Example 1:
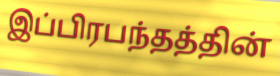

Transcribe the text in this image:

இப்பிரபந்தத்தின்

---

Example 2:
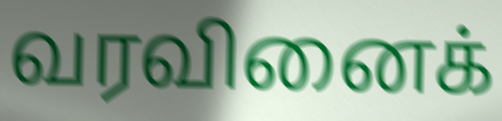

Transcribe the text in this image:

வரவினைக்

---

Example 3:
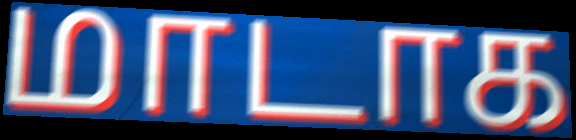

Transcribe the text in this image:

மாடாக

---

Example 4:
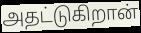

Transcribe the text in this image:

அதட்டுகிறான்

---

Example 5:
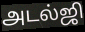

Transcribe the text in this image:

அடல்ஜி